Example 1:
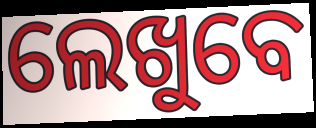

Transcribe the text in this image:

ଲେଖୁବେ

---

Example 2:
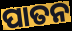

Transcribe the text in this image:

ପାତନ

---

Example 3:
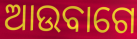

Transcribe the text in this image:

ଆଉବାଗେ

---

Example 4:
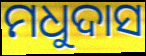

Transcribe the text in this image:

ମଧୁଦାସ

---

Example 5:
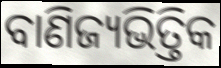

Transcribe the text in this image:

ବାଣିଜ୍ୟଭିତ୍ତିକ